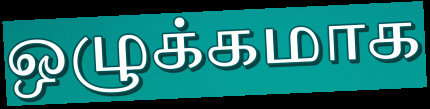
ஒழுக்கமாக